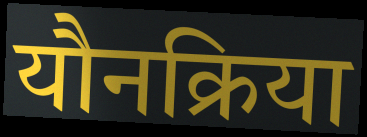
यौनक्रिया